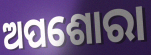
ଅପଶୋରା